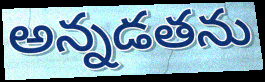
అన్నడతను